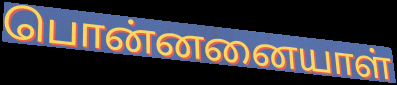
பொன்னனையாள்